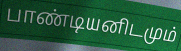
பாண்டியனிடமும்